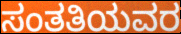
ಸಂತತಿಯವರ